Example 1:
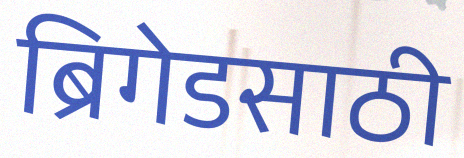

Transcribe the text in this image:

ब्रिगेडसाठी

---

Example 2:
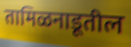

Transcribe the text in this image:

तामिळनाडूतील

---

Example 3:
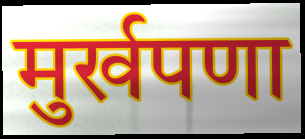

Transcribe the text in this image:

मुर्खपणा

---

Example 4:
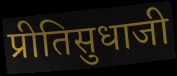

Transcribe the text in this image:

प्रीतिसुधाजी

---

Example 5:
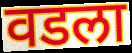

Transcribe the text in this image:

वडला